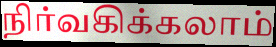
நிர்வகிக்கலாம்